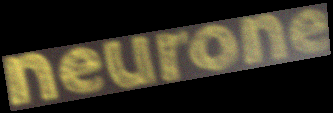
neurone